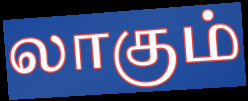
லாகும்